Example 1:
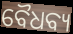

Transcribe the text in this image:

ବୈଧବ୍ୟ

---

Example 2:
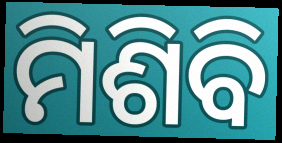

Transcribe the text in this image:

ମିଶିବି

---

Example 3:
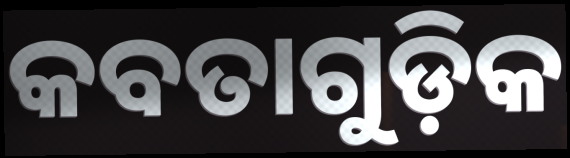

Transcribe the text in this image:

କବତାଗୁଡ଼ିକ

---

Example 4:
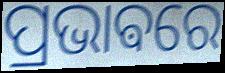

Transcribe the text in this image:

ପ୍ରଭାଵରେ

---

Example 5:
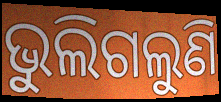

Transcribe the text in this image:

ଭୁଲିଗଲୁଣି